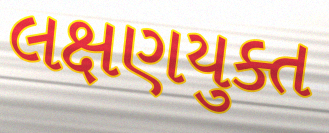
લક્ષણયુક્ત